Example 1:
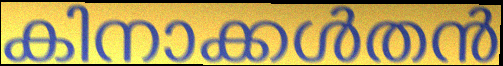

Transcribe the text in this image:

കിനാക്കൾതൻ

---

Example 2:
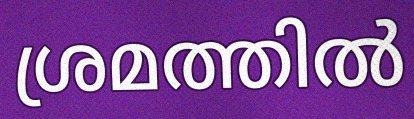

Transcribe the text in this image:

ശ്രമത്തിൽ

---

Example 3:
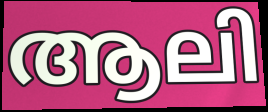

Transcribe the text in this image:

ആലി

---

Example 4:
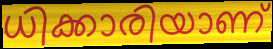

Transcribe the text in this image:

ധിക്കാരിയാണ്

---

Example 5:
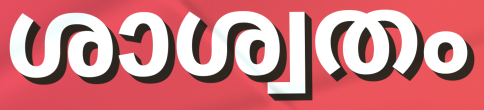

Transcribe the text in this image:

ശാശ്വതം